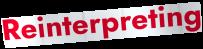
Reinterpreting